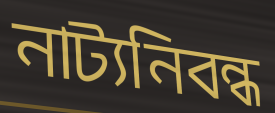
নাট্যনিবন্ধ